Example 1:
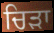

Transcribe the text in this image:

ਚਿੜਾ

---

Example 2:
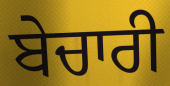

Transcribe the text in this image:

ਬੇਚਾਰੀ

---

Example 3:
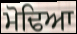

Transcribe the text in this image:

ਮੋਢਿਆ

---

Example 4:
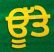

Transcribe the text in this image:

ਊੱਤੇ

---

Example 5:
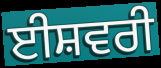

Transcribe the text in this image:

ਈਸ਼ਵਰੀ